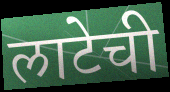
लाटेची